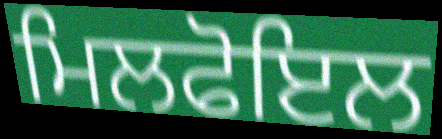
ਮਿਲਫੋਇਲ